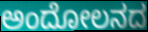
ಅಂದೋಲನದ